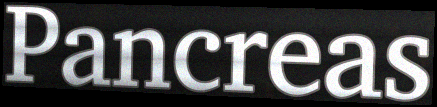
Pancreas